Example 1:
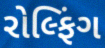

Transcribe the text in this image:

રોલ્ફિંગ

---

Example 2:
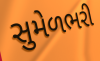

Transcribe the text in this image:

સુમેળભરી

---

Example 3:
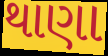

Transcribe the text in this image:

થાણા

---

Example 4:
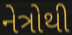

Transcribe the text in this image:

નેત્રોથી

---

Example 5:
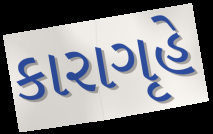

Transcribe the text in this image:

કારાગૃહે